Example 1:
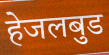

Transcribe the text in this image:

हेजलबुड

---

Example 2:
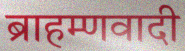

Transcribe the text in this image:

ब्राहम्णवादी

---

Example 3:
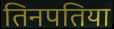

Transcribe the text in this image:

तिनपतिया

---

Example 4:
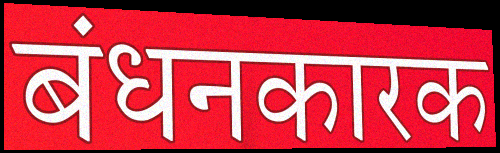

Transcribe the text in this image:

बंधनकारक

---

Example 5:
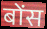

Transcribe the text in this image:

बोंस